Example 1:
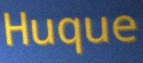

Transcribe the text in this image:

Huque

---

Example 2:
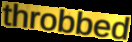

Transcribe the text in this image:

throbbed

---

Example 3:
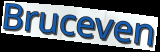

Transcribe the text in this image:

Bruceven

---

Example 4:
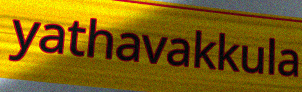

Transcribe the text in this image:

yathavakkula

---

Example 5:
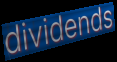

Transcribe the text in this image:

dividends